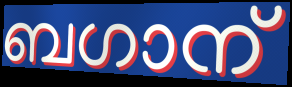
ബഗാന്